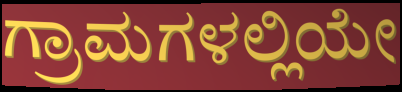
ಗ್ರಾಮಗಳಲ್ಲಿಯೇ